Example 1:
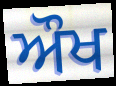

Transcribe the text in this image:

ਔਖ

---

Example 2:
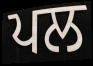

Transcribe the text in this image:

ਪਲ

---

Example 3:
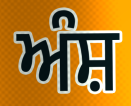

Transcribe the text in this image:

ਅੰਸ਼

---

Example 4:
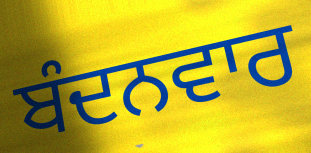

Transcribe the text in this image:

ਬੰਦਨਵਾਰ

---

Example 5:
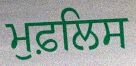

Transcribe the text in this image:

ਮੁਫ਼ਲਿਸ